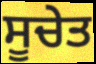
ਸੂਚੇਤ